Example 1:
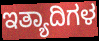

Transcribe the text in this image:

ಇತ್ಯಾದಿಗಳ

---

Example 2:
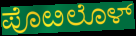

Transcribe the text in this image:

ಪೊೞಲೊಳ್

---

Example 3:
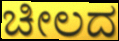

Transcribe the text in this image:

ಚೀಲದ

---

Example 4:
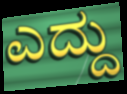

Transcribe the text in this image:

ಎದ್ದು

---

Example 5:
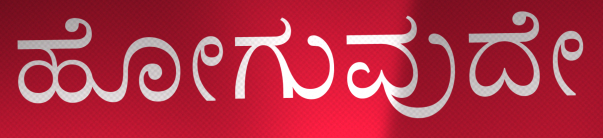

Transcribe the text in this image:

ಹೋಗುವುದೇ